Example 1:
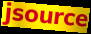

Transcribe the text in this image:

jsource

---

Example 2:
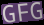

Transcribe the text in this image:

GFG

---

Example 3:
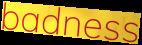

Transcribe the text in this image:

badness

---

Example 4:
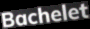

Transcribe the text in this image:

Bachelet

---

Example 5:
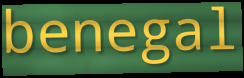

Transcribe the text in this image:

benegal